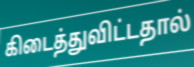
கிடைத்துவிட்டதால்